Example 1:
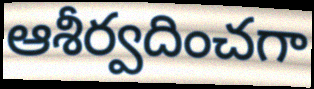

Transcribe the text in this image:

ఆశీర్వదించగా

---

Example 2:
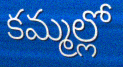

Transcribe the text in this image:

కమ్మల్లో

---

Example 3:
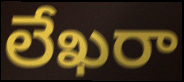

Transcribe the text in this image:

లేఖరా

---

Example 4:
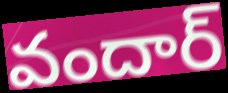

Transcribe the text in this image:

వందార్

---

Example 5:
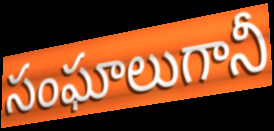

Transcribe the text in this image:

సంఘాలుగానీ